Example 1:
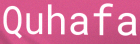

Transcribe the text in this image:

Quhafa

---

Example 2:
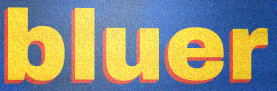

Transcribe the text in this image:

bluer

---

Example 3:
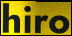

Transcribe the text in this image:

hiro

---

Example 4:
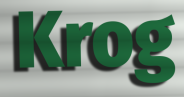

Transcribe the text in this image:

Krog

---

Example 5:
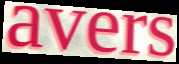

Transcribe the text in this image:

avers